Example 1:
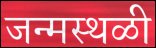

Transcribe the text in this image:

जन्मस्थळी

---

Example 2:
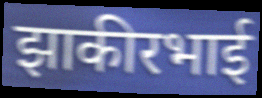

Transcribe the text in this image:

झाकीरभाई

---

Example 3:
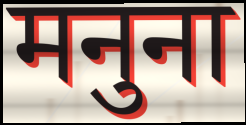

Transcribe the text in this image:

मनुना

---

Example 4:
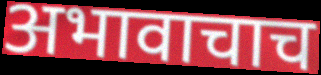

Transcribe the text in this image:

अभावाचाच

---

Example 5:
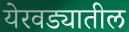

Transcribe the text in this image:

येरवड्यातील